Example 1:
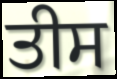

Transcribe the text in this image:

ਤੀਸ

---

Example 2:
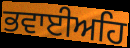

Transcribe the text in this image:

ਭਵਾਈਅਹਿ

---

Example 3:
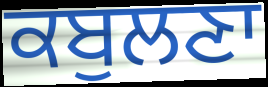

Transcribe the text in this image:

ਕਬੁਲਣਾ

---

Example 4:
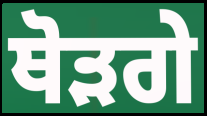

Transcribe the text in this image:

ਥੋੜਗੇ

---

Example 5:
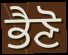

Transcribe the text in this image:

ਭੈਣੋ